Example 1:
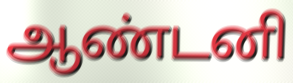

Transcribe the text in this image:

ஆண்டனி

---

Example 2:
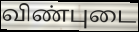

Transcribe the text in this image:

விண்புடை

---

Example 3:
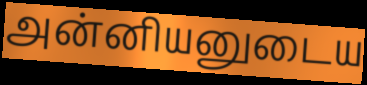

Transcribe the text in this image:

அன்னியனுடைய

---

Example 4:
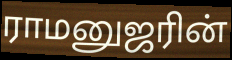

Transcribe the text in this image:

ராமனுஜரின்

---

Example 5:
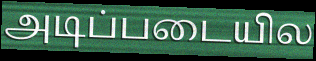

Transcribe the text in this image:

அடிப்படையில